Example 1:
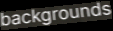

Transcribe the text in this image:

backgrounds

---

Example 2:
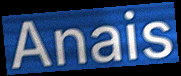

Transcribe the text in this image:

Anais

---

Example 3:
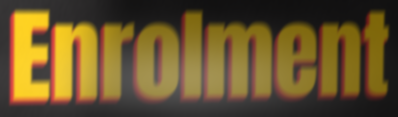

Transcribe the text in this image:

Enrolment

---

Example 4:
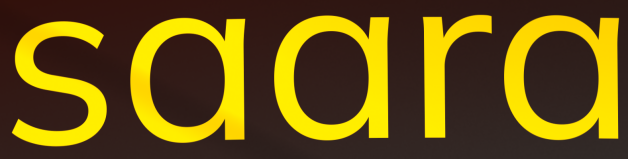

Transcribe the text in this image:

saara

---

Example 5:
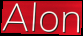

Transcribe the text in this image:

Alon